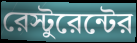
রেস্টুরেন্টের